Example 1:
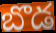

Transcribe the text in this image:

బొడ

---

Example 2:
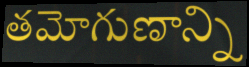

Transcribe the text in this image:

తమోగుణాన్ని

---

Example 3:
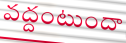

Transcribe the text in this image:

వద్దంటుందా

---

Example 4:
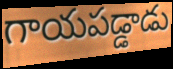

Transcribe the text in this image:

గాయపడ్డాడు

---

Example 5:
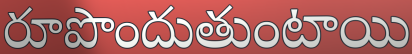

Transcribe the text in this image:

రూపొందుతుంటాయి